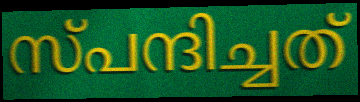
സ്പന്ദിച്ചത്